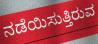
ನಡೆಯಿಸುತ್ತಿರುವ